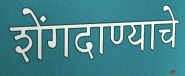
शेंगदाण्याचे